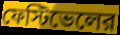
ফেস্টিভেলের